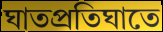
ঘাতপ্রতিঘাতে